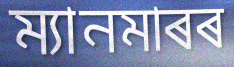
ম্যানমাৰৰ